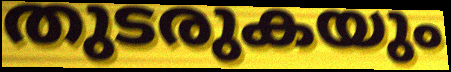
തുടരുകയും